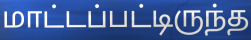
மாட்டப்பட்டிருந்த